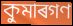
কুমাৰগণ